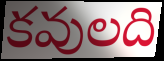
కవులది